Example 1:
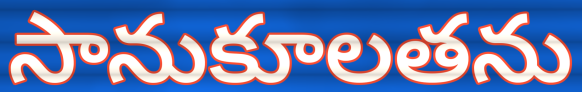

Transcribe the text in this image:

సానుకూలతను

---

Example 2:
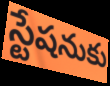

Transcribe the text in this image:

స్టేషనుకు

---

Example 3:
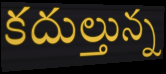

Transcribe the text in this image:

కదుల్తున్న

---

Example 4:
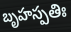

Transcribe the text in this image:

బృహస్పతిః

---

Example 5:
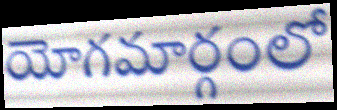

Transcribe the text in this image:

యోగమార్గంలో